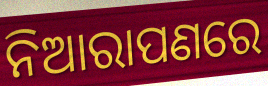
ନିଆରାପଣରେ